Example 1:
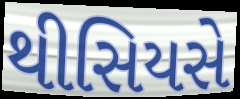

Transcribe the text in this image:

થીસિયસે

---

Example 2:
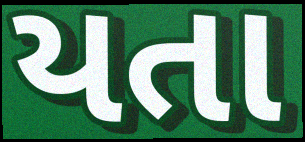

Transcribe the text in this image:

યતા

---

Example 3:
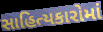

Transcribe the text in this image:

સાહિત્યકારોમાં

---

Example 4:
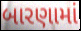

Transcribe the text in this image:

બારણામાં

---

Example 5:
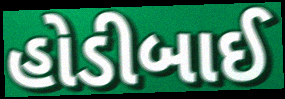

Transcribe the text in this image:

હોડીબાઈ